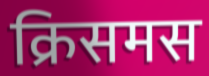
क्रिसमस